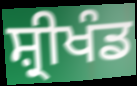
ਸ਼੍ਰੀਖੰਡ